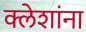
क्लेशांना